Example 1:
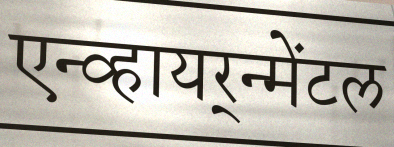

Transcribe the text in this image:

एन्व्हायर्न्मेंटल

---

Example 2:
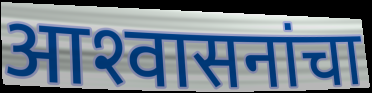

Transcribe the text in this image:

आश्वासनांचा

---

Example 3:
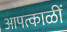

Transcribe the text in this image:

आपत्काळीं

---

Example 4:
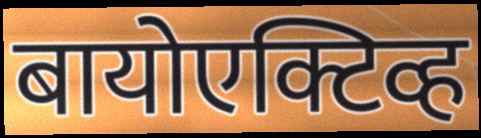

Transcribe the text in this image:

बायोएक्टिव्ह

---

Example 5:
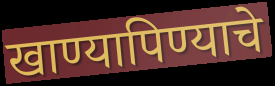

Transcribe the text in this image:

खाण्यापिण्याचे